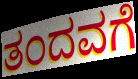
ತಂದವಗೆ